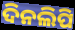
ଦିନଲିପି